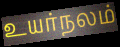
உயர்நலம்